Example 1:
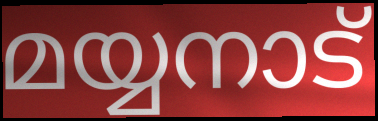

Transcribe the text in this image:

മയ്യനാട്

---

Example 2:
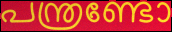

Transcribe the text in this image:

പന്ത്രണ്ടോ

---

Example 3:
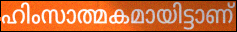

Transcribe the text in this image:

ഹിംസാത്മകമായിട്ടാണ്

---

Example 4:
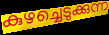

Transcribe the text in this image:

കുഴച്ചെടുക്കുന്ന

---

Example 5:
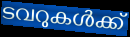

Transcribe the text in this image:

ടവറുകൾക്ക്